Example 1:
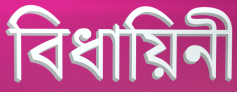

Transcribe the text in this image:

বিধায়িনী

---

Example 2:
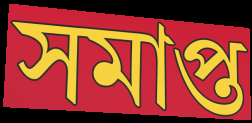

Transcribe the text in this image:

সমাপ্ত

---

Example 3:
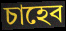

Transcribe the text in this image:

চাহেব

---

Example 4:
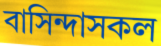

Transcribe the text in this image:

বাসিন্দাসকল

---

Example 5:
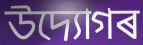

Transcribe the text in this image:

উদ্যোগৰ